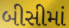
બીસીમાં